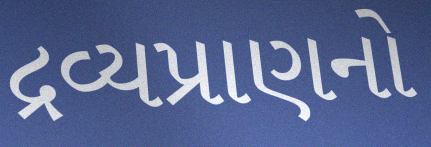
દ્રવ્યપ્રાણનો